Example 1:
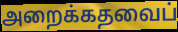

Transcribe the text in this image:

அறைக்கதவைப்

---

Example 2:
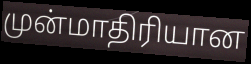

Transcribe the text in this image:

முன்மாதிரியான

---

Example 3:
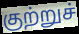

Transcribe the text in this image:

குற்றுச்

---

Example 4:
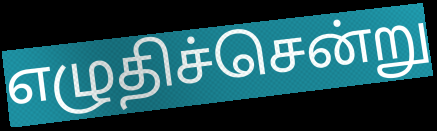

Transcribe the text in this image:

எழுதிச்சென்று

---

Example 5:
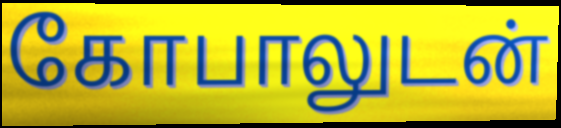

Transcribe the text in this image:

கோபாலுடன்